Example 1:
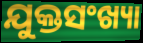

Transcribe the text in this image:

ଯୁକ୍ତସଂଖ୍ୟା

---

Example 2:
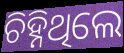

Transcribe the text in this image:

ଚିହ୍ନିଥିଲେ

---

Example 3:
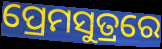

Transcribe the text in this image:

ପ୍ରେମସୁତ୍ରରେ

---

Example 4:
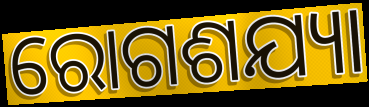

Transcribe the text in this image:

ରୋଗଶଯ୍ୟା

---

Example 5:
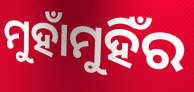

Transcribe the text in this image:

ମୁହାଁମୁହିଁର